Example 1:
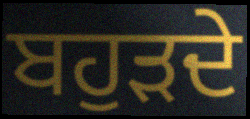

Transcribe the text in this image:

ਬਹੁੜਦੇ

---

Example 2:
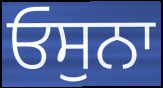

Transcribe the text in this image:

ਓਸੁਨਾ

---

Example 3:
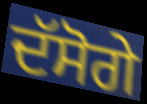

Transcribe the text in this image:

ਦੱਸੋਗੇ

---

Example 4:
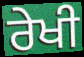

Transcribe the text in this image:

ਰੇਖੀ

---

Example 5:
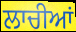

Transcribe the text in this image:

ਲਾਚੀਆਂ